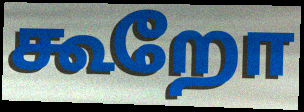
கூறோ